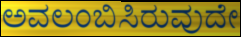
ಅವಲಂಬಿಸಿರುವುದೇ